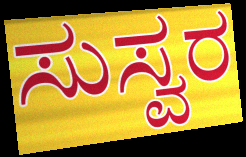
ಸುಸ್ವರ